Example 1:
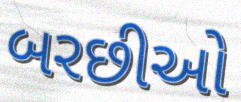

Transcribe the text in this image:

બરછીઓ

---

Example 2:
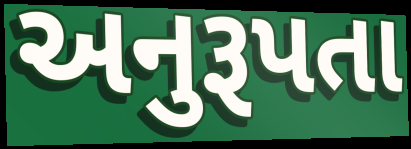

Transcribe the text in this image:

અનુરૂપતા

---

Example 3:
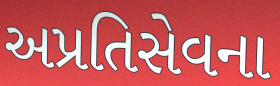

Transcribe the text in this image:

અપ્રતિસેવના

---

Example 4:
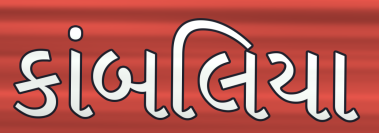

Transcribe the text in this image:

કાંબલિયા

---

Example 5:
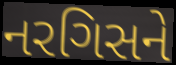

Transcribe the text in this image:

નરગિસને